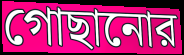
গোছানোর